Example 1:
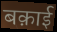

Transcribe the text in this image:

बक़ाई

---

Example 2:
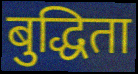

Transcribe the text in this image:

बुद्धिता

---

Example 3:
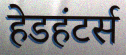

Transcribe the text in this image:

हेडहंटर्स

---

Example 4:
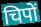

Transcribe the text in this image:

चिपों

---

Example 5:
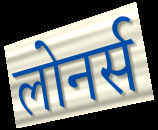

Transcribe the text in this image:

लोनर्स